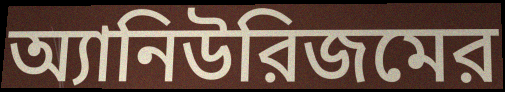
অ্যানিউরিজমের